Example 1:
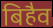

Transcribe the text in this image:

बिहैव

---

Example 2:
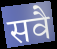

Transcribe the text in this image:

सवै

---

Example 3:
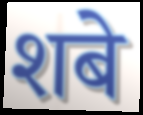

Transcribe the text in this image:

शबे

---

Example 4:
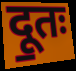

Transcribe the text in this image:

दू॒तः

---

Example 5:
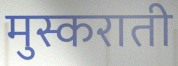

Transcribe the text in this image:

मुस्कराती